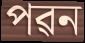
পৱন